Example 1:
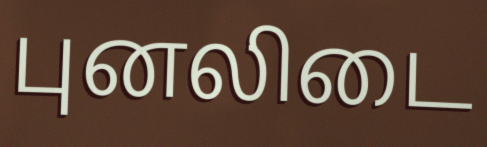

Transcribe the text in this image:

புனலிடை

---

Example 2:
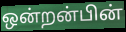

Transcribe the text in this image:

ஒன்றன்பின்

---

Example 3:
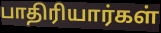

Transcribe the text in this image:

பாதிரியார்கள்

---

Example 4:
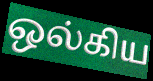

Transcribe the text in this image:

ஒல்கிய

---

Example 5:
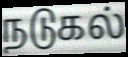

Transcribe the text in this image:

நடுகல்